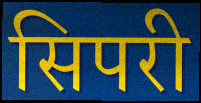
सिपरी